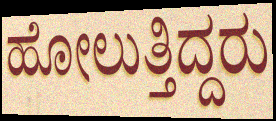
ಹೋಲುತ್ತಿದ್ದರು